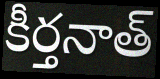
కీర్తనాత్